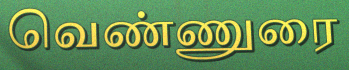
வெண்ணுரை